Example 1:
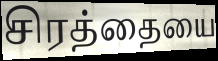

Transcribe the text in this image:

சிரத்தையை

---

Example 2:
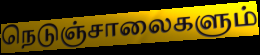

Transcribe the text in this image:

நெடுஞ்சாலைகளும்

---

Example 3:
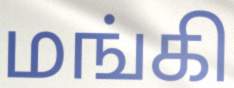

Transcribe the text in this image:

மங்கி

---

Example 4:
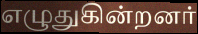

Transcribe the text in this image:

எழுதுகின்றனர்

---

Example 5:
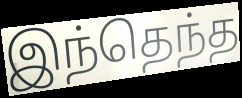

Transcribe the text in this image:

இந்தெந்த